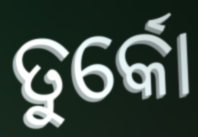
ତୁର୍କୋ